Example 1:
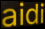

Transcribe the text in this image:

aidi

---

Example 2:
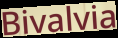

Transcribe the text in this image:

Bivalvia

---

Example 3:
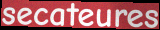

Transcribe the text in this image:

secateures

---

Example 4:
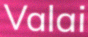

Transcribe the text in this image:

Valai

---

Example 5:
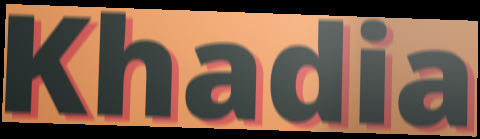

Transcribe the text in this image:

Khadia